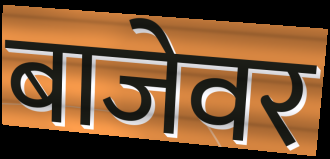
बाजेवर